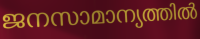
ജനസാമാന്യത്തിൽ